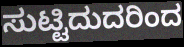
ಸುಟ್ಟಿದುದರಿಂದ